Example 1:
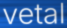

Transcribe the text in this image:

vetal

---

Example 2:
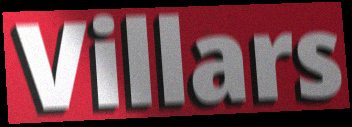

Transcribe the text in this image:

Villars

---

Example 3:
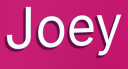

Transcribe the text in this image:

Joey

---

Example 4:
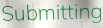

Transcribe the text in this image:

Submitting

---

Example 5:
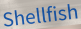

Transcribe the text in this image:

Shellfish